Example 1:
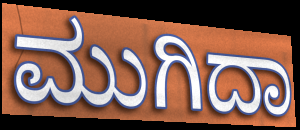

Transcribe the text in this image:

ಮುಗಿದಾ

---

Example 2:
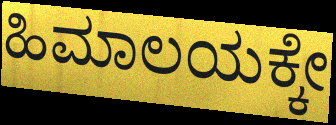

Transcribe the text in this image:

ಹಿಮಾಲಯಕ್ಕೇ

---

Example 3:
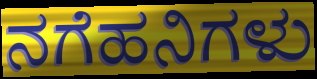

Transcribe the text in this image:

ನಗೆಹನಿಗಳು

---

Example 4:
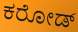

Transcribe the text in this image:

ಕರೋಡ್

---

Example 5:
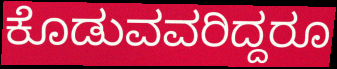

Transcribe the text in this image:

ಕೊಡುವವರಿದ್ದರೂ